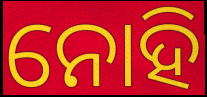
ନୋହି